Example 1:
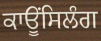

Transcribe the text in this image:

ਕਾਊਂਸਿਲੰਗ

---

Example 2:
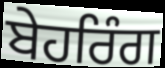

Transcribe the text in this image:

ਬੇਹਰਿੰਗ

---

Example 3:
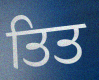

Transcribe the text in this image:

ਤਿਤ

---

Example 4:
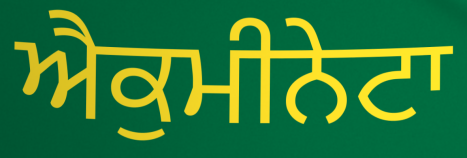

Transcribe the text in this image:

ਐਕੁਮੀਨੇਟਾ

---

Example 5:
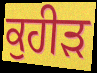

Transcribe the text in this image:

ਕੁਹੀੜ